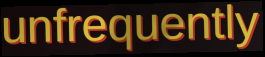
unfrequently